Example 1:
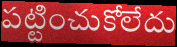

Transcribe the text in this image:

పట్టించుకోలేదు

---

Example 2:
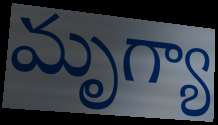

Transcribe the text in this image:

మృగ్యా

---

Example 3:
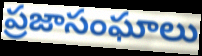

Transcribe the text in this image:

ప్రజాసంఘాలు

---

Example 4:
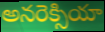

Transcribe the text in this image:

అనరెక్సియా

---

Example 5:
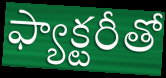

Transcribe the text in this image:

ఫ్యాక్టరీతో